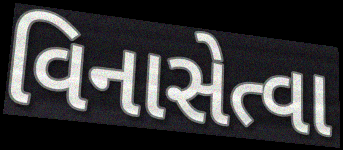
વિનાસેત્વા